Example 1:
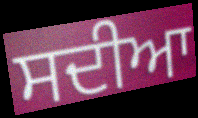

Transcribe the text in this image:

ਸਦੀਆ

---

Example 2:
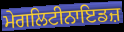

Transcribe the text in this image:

ਮੇਗਲਿਟੀਨਾਇਡਜ਼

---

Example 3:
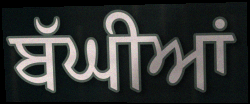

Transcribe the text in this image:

ਬੱਘੀਆਂ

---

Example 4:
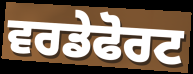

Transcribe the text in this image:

ਵਰਡੇਫੋਰਟ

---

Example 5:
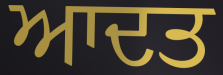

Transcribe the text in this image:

ਆਦਤ